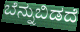
ಬೆನ್ನುಬಿಡದೆ